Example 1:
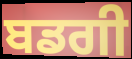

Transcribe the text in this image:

ਬਡਗੀ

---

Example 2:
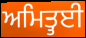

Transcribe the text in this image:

ਅਮਿਤ੍ਤਈ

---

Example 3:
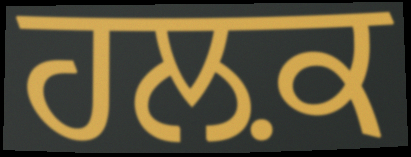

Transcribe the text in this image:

ਹਲ਼ਕ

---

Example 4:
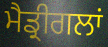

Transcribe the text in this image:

ਮੈਡ੍ਰੀਗਲਾਂ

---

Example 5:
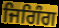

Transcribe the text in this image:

ਜਿਗਿੰਗ